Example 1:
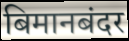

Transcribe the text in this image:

बिमानबंदर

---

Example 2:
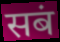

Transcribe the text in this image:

सबं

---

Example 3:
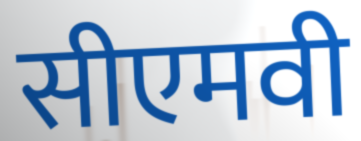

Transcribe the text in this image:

सीएमवी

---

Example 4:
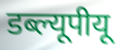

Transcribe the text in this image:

डब्ल्यूपीयू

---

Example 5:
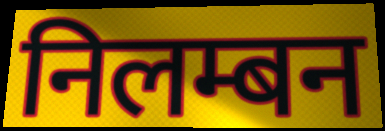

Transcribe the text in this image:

निलम्‍बन